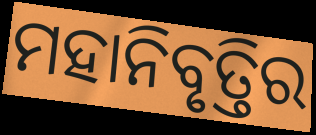
ମହାନିବୃତ୍ତିର